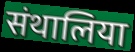
संथालिया